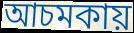
আচমকায়